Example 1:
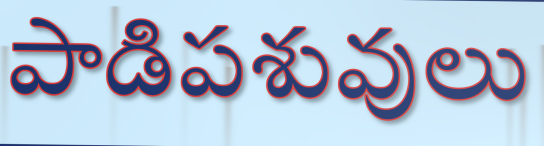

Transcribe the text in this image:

పాడిపశువులు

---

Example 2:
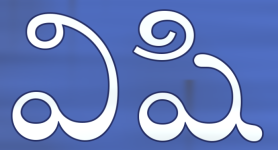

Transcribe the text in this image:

విషి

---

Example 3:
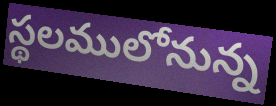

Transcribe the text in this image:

స్థలములోనున్న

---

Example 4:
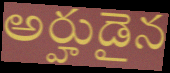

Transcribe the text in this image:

అర్హుడైన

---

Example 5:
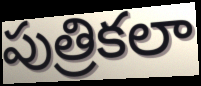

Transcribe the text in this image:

పుత్రికలా